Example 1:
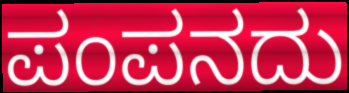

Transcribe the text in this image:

ಪಂಪನದು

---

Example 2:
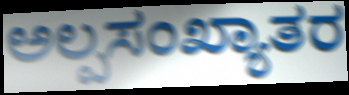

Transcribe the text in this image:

ಅಲ್ಪಸಂಖ್ಯಾತರ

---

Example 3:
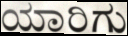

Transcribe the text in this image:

ಯಾರಿಗು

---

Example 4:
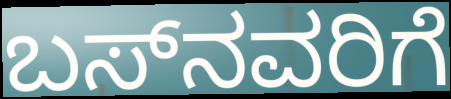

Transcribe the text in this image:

ಬಸ್‌ನವರಿಗೆ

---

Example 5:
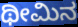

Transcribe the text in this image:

ಥೀಮಿನ